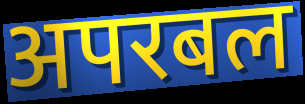
अपरबल